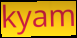
kyam